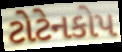
ટોટેનકોપ